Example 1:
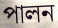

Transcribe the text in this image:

পালন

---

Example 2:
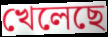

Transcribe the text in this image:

খেলেছে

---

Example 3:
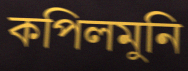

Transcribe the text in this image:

কপিলমুনি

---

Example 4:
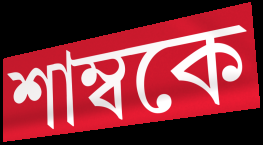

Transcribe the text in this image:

শাম্বকে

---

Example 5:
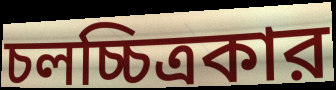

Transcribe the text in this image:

চলচ্চিত্রকার